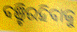
ବଞ୍ଚିରହିବାକୁ